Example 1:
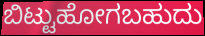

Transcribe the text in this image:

ಬಿಟ್ಟುಹೋಗಬಹುದು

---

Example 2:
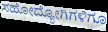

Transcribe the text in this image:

ಸಹೋದ್ಯೋಗಿಗಳಿಗೂ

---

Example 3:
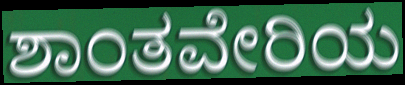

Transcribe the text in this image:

ಶಾಂತವೇರಿಯ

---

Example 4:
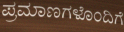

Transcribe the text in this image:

ಪ್ರಮಾಣಗಳೊಂದಿಗೆ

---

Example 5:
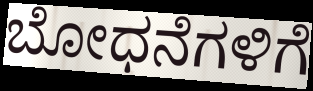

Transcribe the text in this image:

ಬೋಧನೆಗಳಿಗೆ